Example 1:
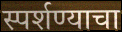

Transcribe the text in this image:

स्पर्शण्याचा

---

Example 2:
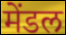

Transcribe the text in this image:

मेंडल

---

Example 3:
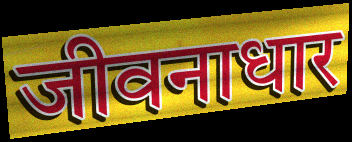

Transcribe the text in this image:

जीवनाधार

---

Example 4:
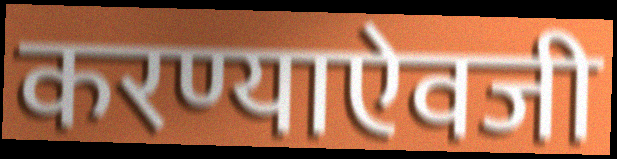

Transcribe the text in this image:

करण्याऐवजी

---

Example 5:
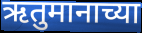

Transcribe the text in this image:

ऋतुमानाच्या